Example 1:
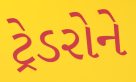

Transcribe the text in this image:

ટ્રેડરોને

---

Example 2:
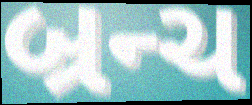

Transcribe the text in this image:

બ્રન્ચ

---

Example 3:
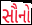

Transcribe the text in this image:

સૌનો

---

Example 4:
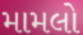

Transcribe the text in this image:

મામલો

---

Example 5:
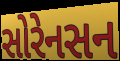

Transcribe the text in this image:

સોરેનસન